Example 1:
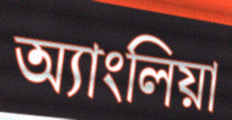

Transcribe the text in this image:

অ্যাংলিয়া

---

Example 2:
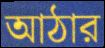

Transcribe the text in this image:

আঠার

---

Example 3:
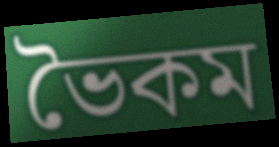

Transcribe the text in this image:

ভৈকম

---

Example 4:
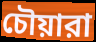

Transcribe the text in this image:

চৌয়ারা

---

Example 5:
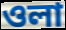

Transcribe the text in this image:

ওলা